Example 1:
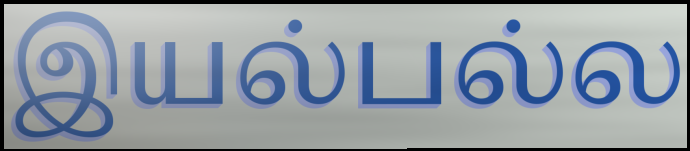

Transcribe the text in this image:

இயல்பல்ல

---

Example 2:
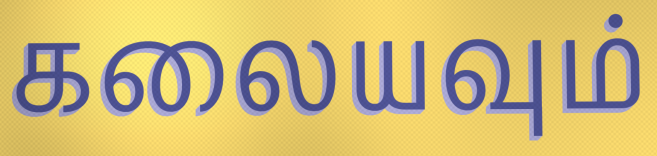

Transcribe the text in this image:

கலையவும்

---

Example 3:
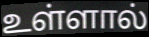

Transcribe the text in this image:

உள்ளால்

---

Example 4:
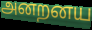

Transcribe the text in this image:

அனறனய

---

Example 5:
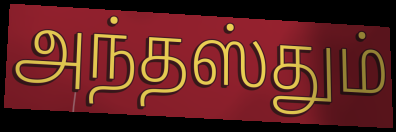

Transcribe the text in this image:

அந்தஸ்தும்